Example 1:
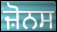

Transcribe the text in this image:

ਜ਼ੋਨਸ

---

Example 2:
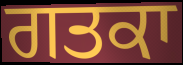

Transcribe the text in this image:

ਗਤਕਾ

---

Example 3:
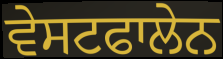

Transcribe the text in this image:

ਵੇਸਟਫਾਲੇਨ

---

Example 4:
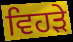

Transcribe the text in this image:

ਵਿਹੜੇ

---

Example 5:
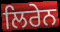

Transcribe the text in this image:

ਲਿਰੇਨ